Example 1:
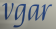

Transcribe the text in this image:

vgar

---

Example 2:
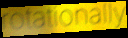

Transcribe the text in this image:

rotationally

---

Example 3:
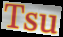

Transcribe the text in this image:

Tsu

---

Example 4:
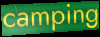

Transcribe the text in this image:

camping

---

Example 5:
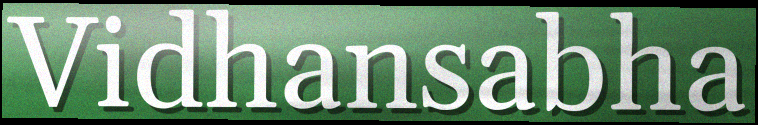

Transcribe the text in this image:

Vidhansabha